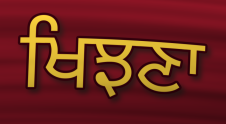
ਖਿਝਣਾ